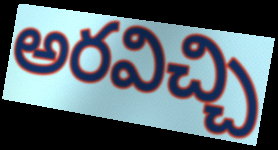
అరవిచ్చి